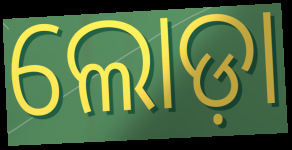
ଲୋଡ଼ା